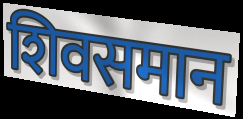
शिवसमान